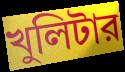
খুলিটার